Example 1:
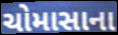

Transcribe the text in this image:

ચોમાસાના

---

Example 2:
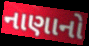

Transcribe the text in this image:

નાણાનો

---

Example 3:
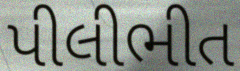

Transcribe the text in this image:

પીલીભીત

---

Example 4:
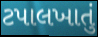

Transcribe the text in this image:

ટપાલખાતું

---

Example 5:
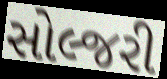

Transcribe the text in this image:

સોલ્જરી